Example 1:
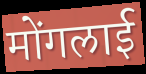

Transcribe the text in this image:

मोंगलाई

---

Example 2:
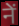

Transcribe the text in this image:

नें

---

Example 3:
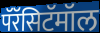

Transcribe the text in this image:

पॅरॅसिटॅमॉल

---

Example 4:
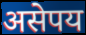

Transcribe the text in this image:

असेपय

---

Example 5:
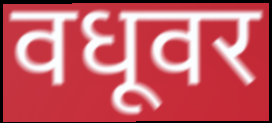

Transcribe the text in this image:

वधूवर